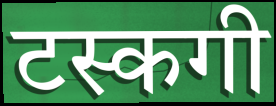
टस्कगी